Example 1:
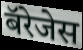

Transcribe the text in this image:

बॅरेजेस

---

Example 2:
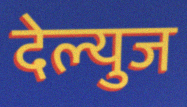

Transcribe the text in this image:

देल्युज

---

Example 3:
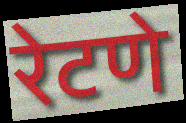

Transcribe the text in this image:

रेटणे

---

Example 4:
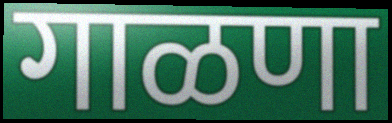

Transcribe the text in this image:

गाळणा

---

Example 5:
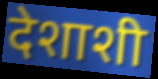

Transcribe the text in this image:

देशाशी